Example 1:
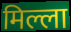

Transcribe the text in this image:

मिल्ला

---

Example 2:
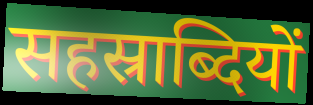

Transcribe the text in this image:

सहस्राब्दियों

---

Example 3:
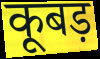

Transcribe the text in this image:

कूबड़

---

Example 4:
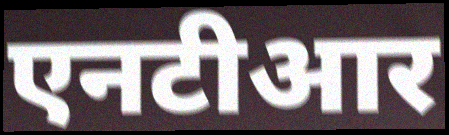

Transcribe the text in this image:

एनटीआर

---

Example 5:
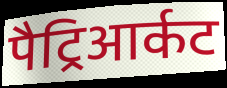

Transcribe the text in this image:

पैट्रिआर्कट